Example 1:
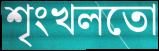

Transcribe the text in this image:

শৃংখলতো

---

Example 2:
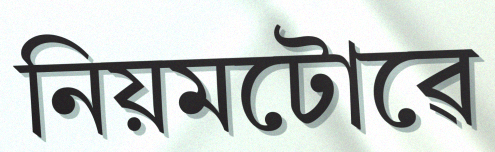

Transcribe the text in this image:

নিয়মটোৱে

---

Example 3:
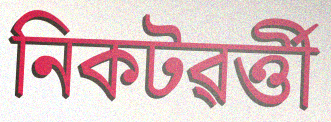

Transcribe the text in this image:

নিকটৱৰ্ত্তী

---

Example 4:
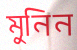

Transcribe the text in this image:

মুনিন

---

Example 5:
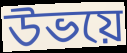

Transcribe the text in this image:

উভয়ে